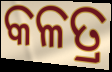
କଳତ୍ର